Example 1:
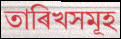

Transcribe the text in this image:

তাৰিখসমূহ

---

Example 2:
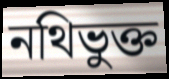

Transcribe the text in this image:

নথিভুক্ত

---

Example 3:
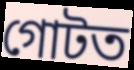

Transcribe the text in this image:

গোটত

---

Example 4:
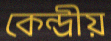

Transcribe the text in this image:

কেন্দ্ৰীয়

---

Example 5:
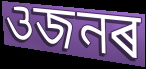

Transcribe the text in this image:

ওজনৰ